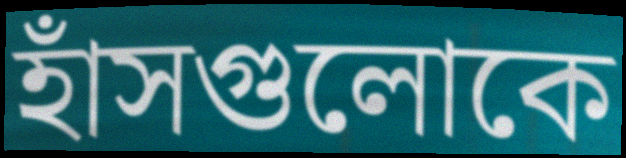
হাঁসগুলোকে